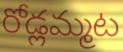
రోడ్లమ్మట